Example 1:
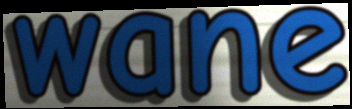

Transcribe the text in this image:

wane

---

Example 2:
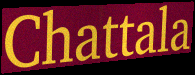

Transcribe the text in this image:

Chattala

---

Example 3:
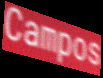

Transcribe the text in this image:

Campos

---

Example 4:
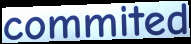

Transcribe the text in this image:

commited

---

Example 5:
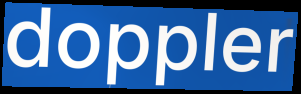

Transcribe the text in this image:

doppler